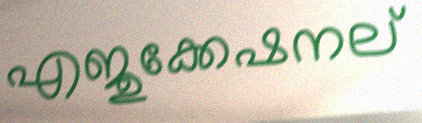
എജുക്കേഷനല്